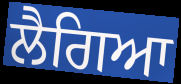
ਲੈਗਿਆ